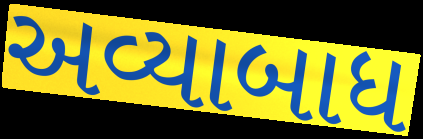
અવ્યાબાધ